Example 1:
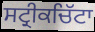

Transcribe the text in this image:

ਸਟ੍ਰੀਕਚਿੱਟਾ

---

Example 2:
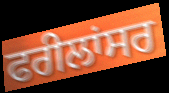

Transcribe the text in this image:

ਫਰੀਲਾਂਸਰ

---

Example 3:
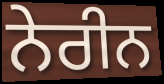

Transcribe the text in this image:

ਨੇਰੀਨ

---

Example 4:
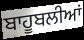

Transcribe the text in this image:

ਬਾਹੂਬਲੀਆਂ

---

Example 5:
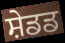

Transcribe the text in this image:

ਸ਼ੇਡਡ